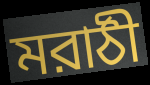
মরাঠী